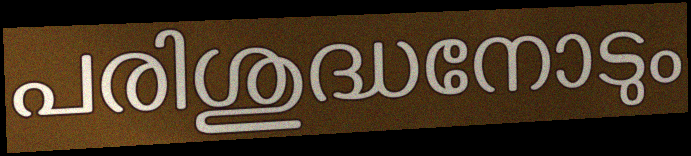
പരിശുദ്ധനോടും